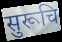
सुरूचि